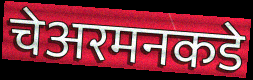
चेअरमनकडे